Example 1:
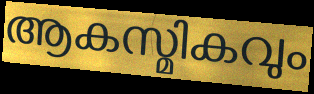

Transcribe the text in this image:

ആകസ്മികവും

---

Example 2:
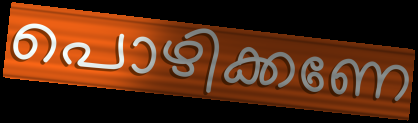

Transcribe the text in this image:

പൊഴിക്കണേ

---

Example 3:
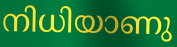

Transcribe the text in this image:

നിധിയാണു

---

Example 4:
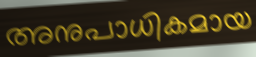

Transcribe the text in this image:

അനുപാധികമായ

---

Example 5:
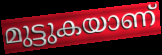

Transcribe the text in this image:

മുട്ടുകയാണ്